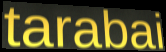
tarabai